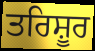
ਤਰਿਸ਼ੂਰ